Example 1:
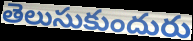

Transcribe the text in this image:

తెలుసుకుందురు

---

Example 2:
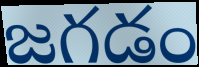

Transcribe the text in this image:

జగడం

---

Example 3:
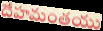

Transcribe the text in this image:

దేహమంతయు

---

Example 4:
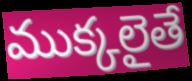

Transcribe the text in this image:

ముక్కలైతే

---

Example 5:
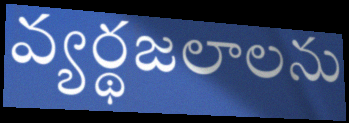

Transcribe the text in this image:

వ్యర్థజలాలను